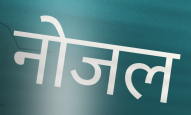
नोजल